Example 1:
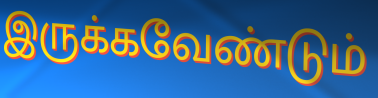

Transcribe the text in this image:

இருக்கவேண்டும்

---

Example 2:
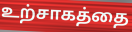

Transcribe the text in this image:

உற்சாகத்தை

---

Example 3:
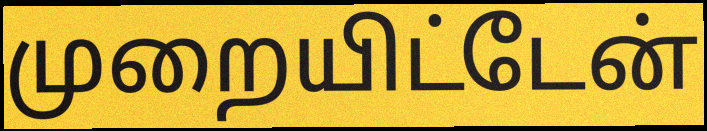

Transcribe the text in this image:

முறையிட்டேன்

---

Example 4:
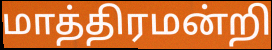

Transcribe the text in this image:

மாத்திரமன்றி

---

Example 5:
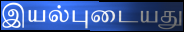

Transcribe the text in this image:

இயல்புடையது